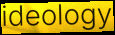
ideology